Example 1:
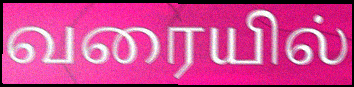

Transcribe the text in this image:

வரையில்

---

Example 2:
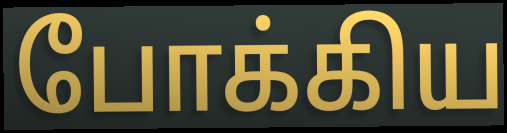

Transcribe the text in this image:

போக்கிய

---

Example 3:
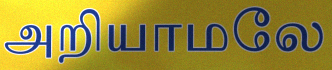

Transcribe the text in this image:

அறியாமலே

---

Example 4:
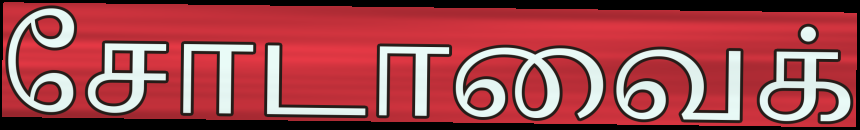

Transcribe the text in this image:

சோடாவைக்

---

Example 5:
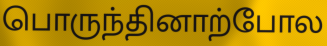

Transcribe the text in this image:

பொருந்தினாற்போல